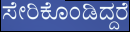
ಸೇರಿಕೊಂಡಿದ್ದರೆ